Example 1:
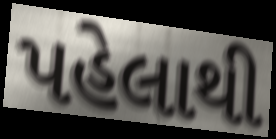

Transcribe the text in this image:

પહેલાથી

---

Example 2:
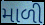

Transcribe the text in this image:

માળી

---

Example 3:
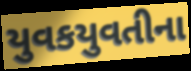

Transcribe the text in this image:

યુવકયુવતીના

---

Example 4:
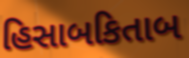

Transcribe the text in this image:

હિસાબકિતાબ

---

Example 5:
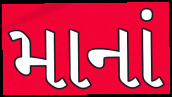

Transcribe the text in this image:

માનાં